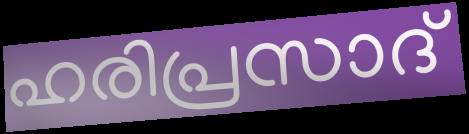
ഹരിപ്രസാദ്